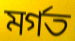
মৰ্গত